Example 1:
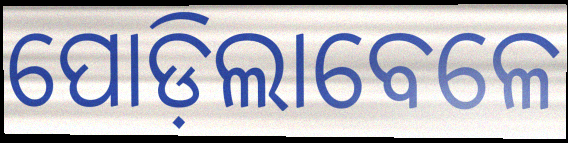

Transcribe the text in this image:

ପୋଡ଼ିଲାବେଳେ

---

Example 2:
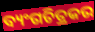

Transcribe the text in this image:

ବ୍ୟଂଗଚିତ୍ରକର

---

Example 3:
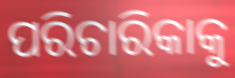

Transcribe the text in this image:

ପରିଚାରିକାକୁ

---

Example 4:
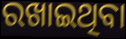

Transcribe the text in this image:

ରଖାଇଥିବା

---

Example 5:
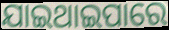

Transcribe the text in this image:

ଯାଇଥାଇପାରେ